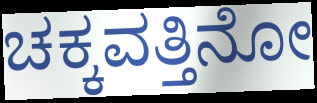
ಚಕ್ಕವತ್ತಿನೋ